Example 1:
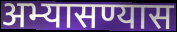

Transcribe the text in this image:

अभ्यासण्यास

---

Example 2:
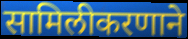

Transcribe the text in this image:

सामिलीकरणाने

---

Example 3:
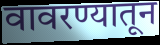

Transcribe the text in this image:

वावरण्यातून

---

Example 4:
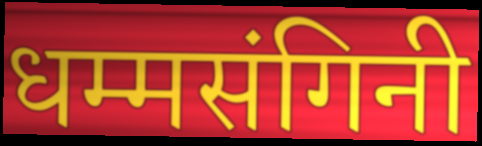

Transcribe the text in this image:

धम्मसंगिनी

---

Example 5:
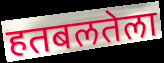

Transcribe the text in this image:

हतबलतेला